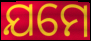
ଯମେ